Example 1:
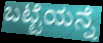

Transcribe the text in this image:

ಬಟ್ಟೆಯನ್ನೆ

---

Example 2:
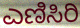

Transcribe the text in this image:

ಎಣಿಸಿರಿ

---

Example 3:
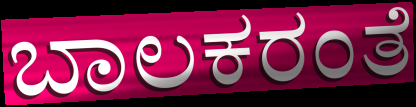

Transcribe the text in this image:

ಬಾಲಕರಂತೆ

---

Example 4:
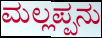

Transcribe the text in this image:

ಮಲ್ಲಪ್ಪನು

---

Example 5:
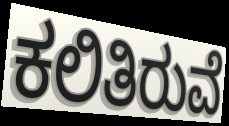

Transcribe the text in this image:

ಕಲಿತಿರುವೆ